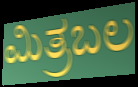
ಮಿತ್ರಬಲ